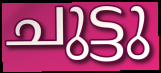
ചുട്ടു